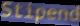
Stipend